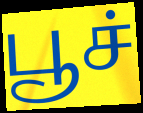
பூச்